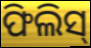
ଫିଲିସ୍